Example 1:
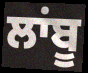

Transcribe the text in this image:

ਲਾਂਬੂ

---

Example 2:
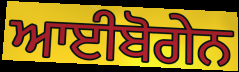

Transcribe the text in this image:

ਆਈਬੋਗੇਨ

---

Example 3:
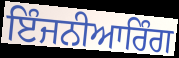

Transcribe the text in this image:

ਇੰਜਨੀਆਰਿੰਗ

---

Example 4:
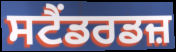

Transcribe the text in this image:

ਸਟੈਂਡਰਡਜ਼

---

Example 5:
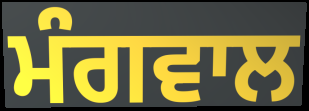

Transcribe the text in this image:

ਮੰਗਵਾਲ